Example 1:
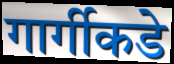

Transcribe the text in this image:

गार्गीकडे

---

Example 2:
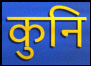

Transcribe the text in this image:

कुनि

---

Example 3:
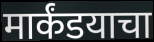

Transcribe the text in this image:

मार्कंडयाचा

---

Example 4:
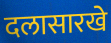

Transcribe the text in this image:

दलासारखे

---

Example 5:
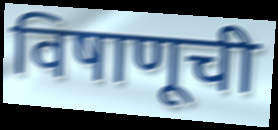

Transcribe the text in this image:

विषाणूची